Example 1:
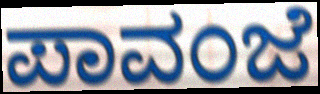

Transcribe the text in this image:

ಪಾವಂಜೆ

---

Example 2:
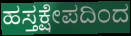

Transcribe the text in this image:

ಹಸ್ತಕ್ಷೇಪದಿಂದ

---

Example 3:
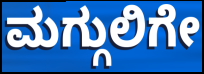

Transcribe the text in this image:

ಮಗ್ಗುಲಿಗೇ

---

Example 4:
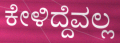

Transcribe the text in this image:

ಕೇಳಿದ್ದೆವಲ್ಲ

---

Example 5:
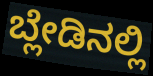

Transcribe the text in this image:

ಬ್ಲೇಡಿನಲ್ಲಿ